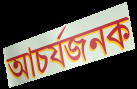
আচৰ্যজনক